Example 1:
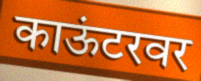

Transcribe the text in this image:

काऊंटरवर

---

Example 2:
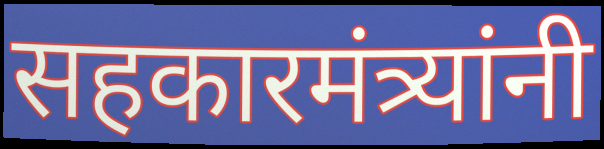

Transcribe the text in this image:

सहकारमंत्र्यांनी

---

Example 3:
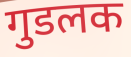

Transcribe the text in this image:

गुडलक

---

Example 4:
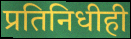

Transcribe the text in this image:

प्रतिनिधीही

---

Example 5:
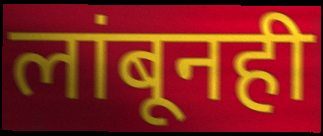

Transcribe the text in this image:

लांबूनही